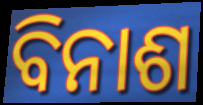
ବିନାଶ